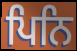
ਪਿਨਿ